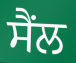
ਸੈਂਲ